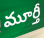
మూర్తీ